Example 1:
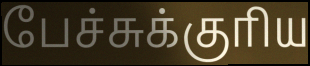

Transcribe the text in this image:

பேச்சுக்குரிய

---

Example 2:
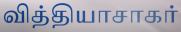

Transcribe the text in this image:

வித்தியாசாகர்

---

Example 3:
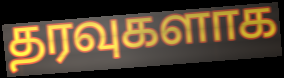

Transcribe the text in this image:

தரவுகளாக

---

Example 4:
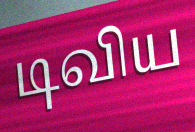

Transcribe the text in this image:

டிவிய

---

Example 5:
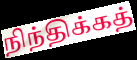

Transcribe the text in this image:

நிந்திக்கத்